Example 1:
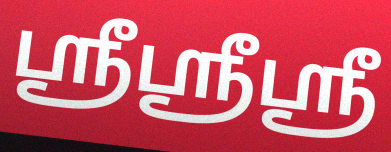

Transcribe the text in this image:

ஸ்ரீஸ்ரீஸ்ரீ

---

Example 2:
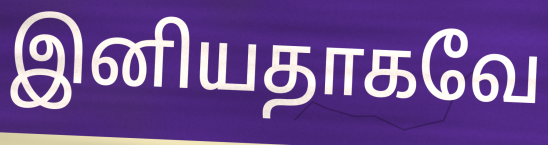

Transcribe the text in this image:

இனியதாகவே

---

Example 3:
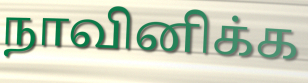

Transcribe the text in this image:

நாவினிக்க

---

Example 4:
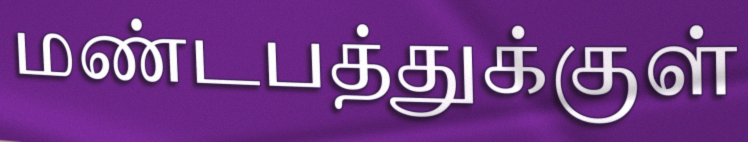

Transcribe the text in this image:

மண்டபத்துக்குள்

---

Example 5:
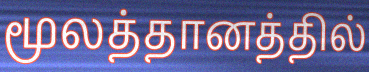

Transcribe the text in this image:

மூலத்தானத்தில்